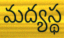
మద్యస్థ